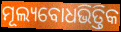
ମୂଲ୍ୟବୋଧଭିତ୍ତିକ